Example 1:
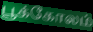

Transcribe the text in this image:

பூக்கோலம்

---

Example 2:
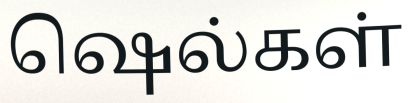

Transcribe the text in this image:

ஷெல்கள்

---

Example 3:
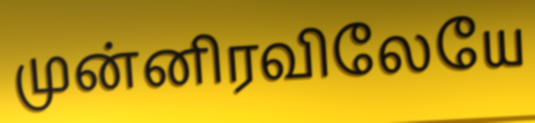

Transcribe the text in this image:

முன்னிரவிலேயே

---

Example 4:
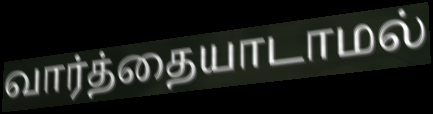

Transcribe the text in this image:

வார்த்தையாடாமல்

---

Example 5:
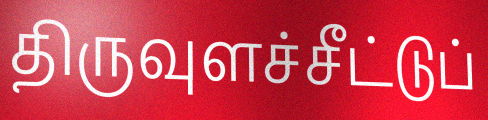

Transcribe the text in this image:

திருவுளச்சீட்டுப்